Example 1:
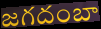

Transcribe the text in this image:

జగదంబా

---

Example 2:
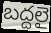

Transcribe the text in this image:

బద్దలై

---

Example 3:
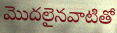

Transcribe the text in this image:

మొదలైనవాటితో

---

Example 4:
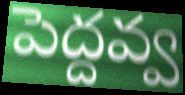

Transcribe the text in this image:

పెద్దవ్వ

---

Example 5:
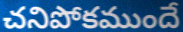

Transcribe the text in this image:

చనిపోకముందే